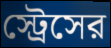
স্ট্রেসের